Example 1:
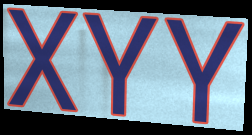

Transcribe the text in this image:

XYY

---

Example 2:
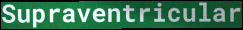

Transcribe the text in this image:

Supraventricular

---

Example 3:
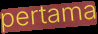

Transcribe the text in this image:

pertama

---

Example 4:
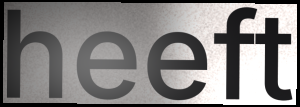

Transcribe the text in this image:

heeft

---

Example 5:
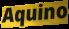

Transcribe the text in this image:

Aquino